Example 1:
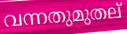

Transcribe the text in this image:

വന്നതുമുതല്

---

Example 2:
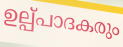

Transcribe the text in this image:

ഉല്പ്പാദകരും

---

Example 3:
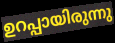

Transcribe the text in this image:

ഉറപ്പായിരുന്നു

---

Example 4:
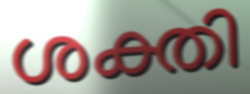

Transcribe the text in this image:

ശക്തി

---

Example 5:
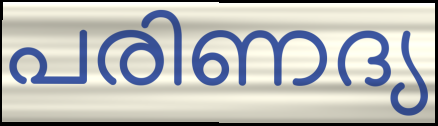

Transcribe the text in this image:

പരിണദ്യ